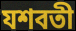
যশবতী